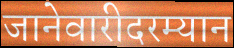
जानेवारीदरम्यान